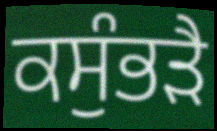
ਕਸੁੰਭੜੈ